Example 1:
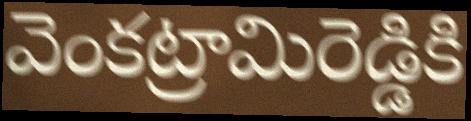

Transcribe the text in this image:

వెంకట్రామిరెడ్డికి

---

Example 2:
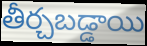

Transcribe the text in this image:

తీర్చబడ్డాయి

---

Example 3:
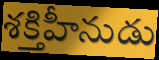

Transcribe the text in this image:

శక్తిహీనుడు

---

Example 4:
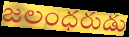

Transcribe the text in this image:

జలంధరుడు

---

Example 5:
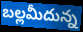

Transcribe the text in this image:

బల్లమీదున్న